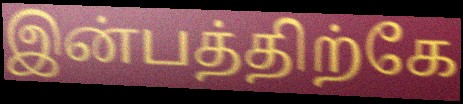
இன்பத்திற்கே